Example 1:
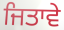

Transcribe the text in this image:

ਜਿਤਾਵੇ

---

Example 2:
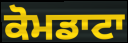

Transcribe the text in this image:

ਕੋਮਡਾਟਾ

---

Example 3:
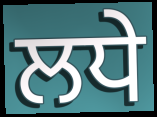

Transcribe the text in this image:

ਲਧੇ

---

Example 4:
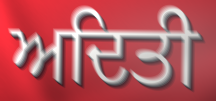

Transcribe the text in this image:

ਅਦਿਤੀ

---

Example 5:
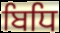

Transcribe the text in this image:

ਬਿਧਿ